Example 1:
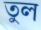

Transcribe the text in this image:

তুল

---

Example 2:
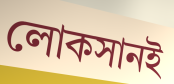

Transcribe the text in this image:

লোকসানই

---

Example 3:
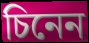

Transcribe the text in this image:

চিনেন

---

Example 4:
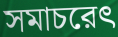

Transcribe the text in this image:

সমাচরেৎ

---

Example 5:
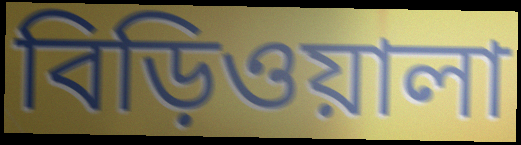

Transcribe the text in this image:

বিড়িওয়ালা